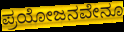
ಪ್ರಯೋಜನವೇನೂ